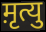
म़ृत्यु